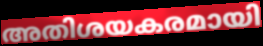
അതിശയകരമായി